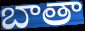
బాతా